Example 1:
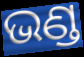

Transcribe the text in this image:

ଭଣ୍ଡ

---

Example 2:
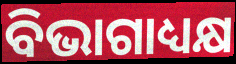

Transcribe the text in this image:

ବିଭାଗାଧ୍ୟକ୍ଷ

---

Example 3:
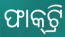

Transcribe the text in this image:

ଫାକ୍‍ଟ୍ରି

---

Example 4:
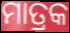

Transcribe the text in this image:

ମାତ୍ରକ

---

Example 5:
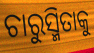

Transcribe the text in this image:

ଚାରୁସ୍ମିତାକୁ